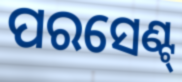
ପରସେଣ୍ଟ୍